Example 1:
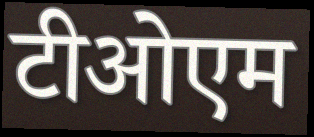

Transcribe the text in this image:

टीओएम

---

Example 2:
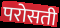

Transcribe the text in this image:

परोसती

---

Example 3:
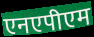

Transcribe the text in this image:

एनएपीएम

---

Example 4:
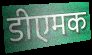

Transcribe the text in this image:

डीएमक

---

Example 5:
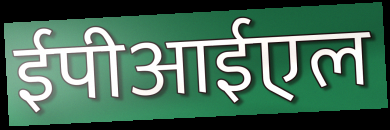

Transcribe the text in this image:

ईपीआईएल